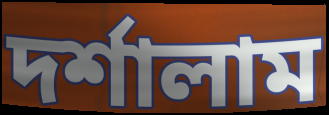
দর্শালাম